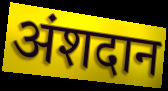
अंशदान